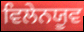
ਵਿਲੇਨਯੂਵ